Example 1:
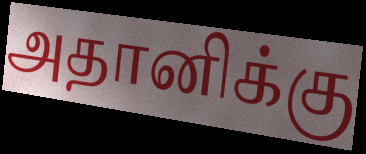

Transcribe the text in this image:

அதானிக்கு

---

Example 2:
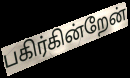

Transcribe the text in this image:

பகிர்கின்றேன்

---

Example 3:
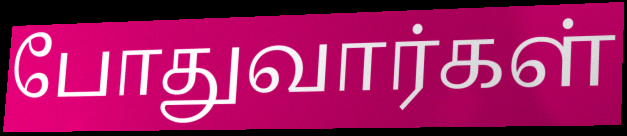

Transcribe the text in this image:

போதுவார்கள்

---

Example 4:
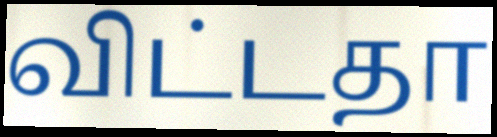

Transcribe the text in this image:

விட்டதா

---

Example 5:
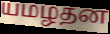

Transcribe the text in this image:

யமழதன